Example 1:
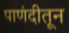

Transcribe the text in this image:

पाणंदीतून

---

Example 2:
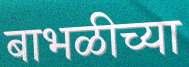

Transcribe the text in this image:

बाभळीच्या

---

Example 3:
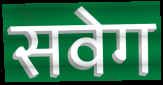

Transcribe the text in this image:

सवेग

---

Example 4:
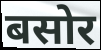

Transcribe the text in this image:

बसोर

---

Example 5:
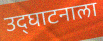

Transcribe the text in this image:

उद्घाटनाला